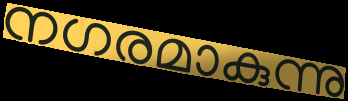
നഗരമാകുന്നു